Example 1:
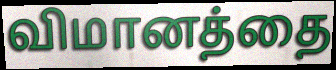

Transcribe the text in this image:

விமானத்தை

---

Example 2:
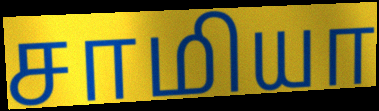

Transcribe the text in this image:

சாமியா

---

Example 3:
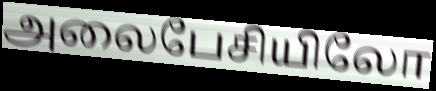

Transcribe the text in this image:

அலைபேசியிலோ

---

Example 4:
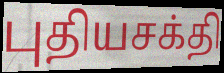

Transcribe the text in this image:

புதியசக்தி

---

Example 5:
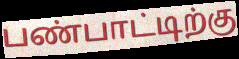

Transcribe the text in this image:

பண்பாட்டிற்கு